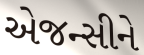
એજન્સીને